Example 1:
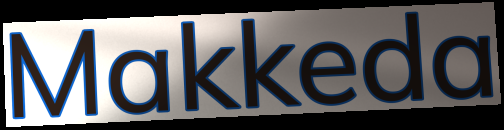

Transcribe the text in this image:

Makkeda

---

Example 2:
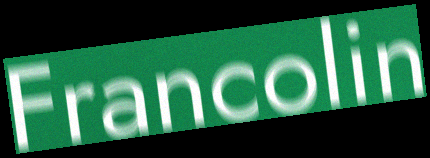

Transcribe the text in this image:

Francolin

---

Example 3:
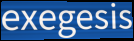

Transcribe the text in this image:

exegesis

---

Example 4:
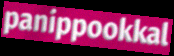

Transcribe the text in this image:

panippookkal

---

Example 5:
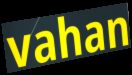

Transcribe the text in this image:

vahan